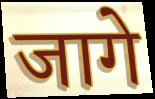
जागे